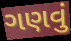
ગણવું